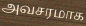
அவசரமாக